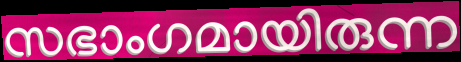
സഭാംഗമായിരുന്ന